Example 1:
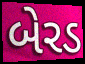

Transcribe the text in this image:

બેરડ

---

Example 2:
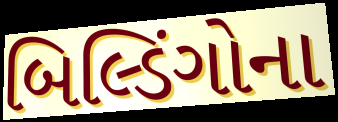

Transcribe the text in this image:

બિલ્ડિંગોના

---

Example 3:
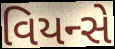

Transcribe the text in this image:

વિયન્સે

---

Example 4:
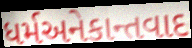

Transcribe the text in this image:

ધર્મઅનેકાન્તવાદ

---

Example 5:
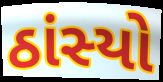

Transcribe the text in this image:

ઠાંસ્યો